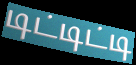
டிட்டிட்டி